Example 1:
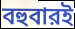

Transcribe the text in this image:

বহুবারই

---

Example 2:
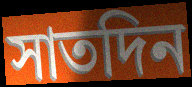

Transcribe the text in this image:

সাতদিন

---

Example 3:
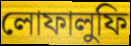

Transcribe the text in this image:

লোফালুফি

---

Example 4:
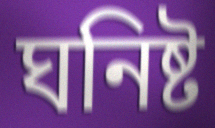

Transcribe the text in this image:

ঘনিষ্ট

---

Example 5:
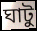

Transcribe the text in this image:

ঘাটু